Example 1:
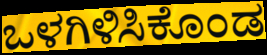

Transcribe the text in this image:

ಒಳಗಿಳಿಸಿಕೊಂಡ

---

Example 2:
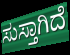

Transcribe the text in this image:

ಸುಸ್ತಾಗಿದೆ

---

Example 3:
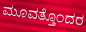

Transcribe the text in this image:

ಮೂವತ್ತೊಂದರ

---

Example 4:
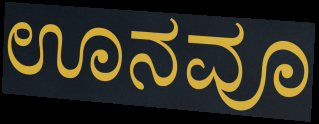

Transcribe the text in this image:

ಊನವೂ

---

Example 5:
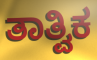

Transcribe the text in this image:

ತಾತ್ವಿಕ